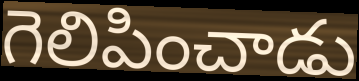
గెలిపించాడు